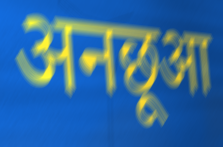
अनछूआ